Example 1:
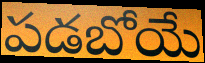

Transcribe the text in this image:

పడబోయే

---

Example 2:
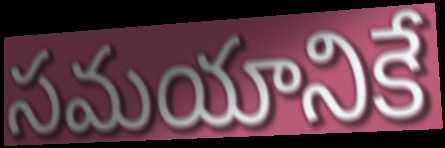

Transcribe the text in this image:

సమయానికే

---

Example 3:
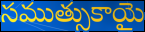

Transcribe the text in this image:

సముత్సుకాయై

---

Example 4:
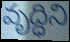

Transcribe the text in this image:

వృద్ధిని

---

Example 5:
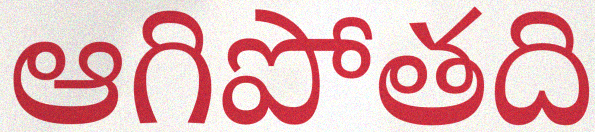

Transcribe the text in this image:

ఆగిపోతది